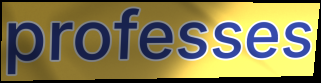
professes